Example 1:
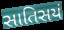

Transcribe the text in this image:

સાતિસયં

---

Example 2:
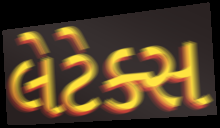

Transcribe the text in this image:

લેટેક્સ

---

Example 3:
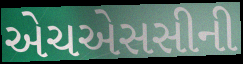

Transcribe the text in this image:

એચએસસીની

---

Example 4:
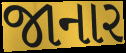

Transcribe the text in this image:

જાનાર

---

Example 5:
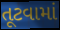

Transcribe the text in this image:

તૂટવામાં